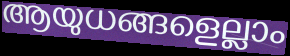
ആയുധങ്ങളെല്ലാം